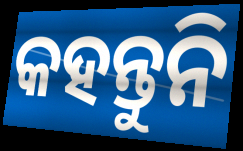
କହନ୍ତୁନି